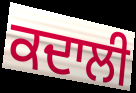
ਕਦਾਲੀ